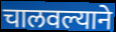
चालवल्याने